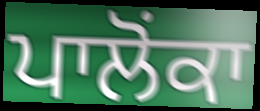
ਪਾਲੋਂਕਾ